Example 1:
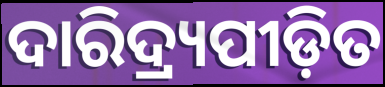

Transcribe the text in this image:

ଦାରିଦ୍ର୍ୟପୀଡ଼ିତ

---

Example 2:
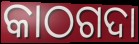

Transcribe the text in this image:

କାଠଗଦା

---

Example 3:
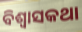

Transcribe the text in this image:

ବିଶ୍ଵାସକଥା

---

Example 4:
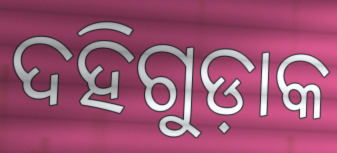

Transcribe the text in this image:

ଦହିଗୁଡ଼ାକ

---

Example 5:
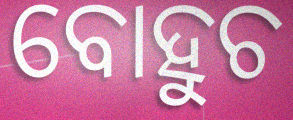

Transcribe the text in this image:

ବୋହୁଚ